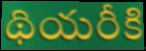
థియరీకి